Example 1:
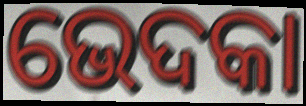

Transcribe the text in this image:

ଭେଦକା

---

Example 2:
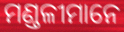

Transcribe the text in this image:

ମଣ୍ଡଳୀମାନେ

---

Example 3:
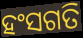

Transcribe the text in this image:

ହଂସଗତି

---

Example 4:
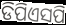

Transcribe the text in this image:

ଡିପିଏସପି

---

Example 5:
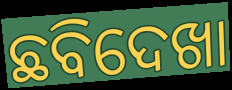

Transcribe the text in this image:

ଛବିଦେଖା